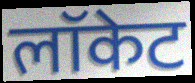
लॉकेट